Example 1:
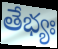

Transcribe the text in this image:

తేభ్యః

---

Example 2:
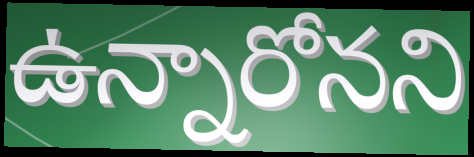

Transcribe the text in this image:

ఉన్నారోనని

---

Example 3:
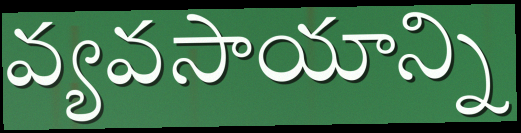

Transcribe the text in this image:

వ్యవసాయాన్ని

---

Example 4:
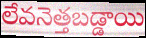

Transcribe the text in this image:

లేవనెత్తబడ్డాయి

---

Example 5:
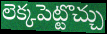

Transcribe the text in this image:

లెక్కపెట్టొచ్చు